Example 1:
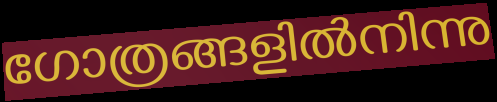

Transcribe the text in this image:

ഗോത്രങ്ങളിൽനിന്നു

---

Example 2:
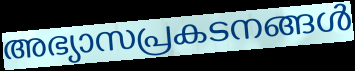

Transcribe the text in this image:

അഭ്യാസപ്രകടനങ്ങൾ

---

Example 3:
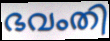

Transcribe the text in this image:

ഭവംതി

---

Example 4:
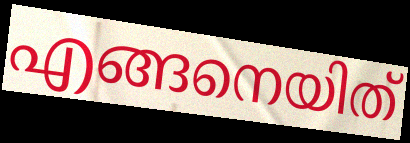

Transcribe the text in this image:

എങ്ങനെയിത്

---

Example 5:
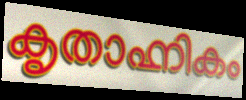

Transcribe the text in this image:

കൃതാഹ്നികം